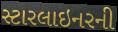
સ્ટારલાઇનરની